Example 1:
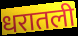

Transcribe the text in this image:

धरातली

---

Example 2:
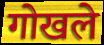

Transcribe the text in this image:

गोखले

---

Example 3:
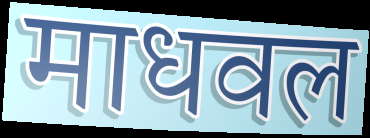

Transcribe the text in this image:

माधवल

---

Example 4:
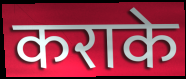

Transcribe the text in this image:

कराके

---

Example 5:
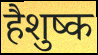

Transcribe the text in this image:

हैशुष्क